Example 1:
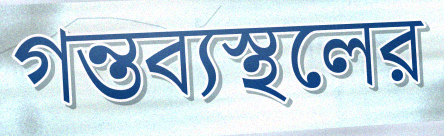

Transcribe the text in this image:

গন্তব্যস্থলের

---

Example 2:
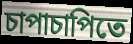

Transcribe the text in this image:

চাপাচাপিতে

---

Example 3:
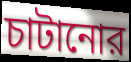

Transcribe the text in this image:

চাটানোর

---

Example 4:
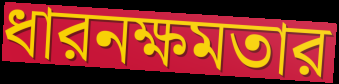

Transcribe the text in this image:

ধারনক্ষমতার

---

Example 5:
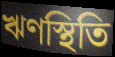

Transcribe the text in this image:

ঋণস্থিতি